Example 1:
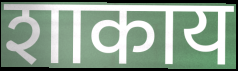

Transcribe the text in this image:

शाकाय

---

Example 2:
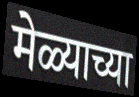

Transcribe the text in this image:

मेळ्याच्या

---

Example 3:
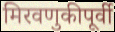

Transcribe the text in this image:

मिरवणुकीपूर्वी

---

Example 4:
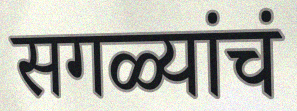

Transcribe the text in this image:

सगळ्यांचं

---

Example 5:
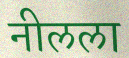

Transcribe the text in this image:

नीलला